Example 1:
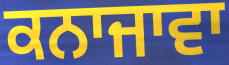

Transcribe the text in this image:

ਕਨਾਜਾਵਾ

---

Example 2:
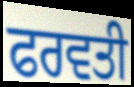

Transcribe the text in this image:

ਫਰਵਤੀ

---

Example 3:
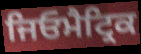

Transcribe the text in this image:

ਜਿਓਮੈਟ੍ਰਿਕ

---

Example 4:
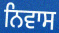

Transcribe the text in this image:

ਨਿਵਾਸ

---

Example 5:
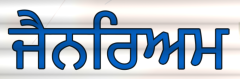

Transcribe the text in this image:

ਜੈਨਰਿਅਮ